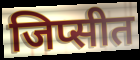
जिप्सीत